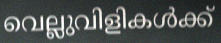
വെല്ലുവിളികൾക്ക്